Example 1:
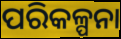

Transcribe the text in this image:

ପରିକଳ୍ପନା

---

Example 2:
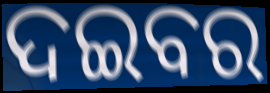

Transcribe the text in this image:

ଦଇବର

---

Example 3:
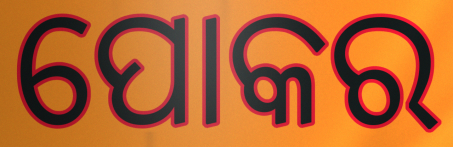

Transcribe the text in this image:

ପୋକର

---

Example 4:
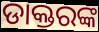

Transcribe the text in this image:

ଡାକ୍ତରଙ୍କ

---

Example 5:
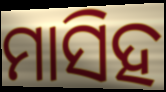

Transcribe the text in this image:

ମାସିହ